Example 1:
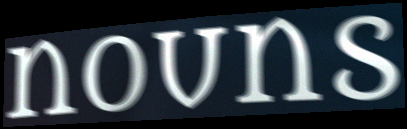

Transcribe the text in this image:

nouns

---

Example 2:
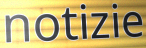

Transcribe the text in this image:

notizie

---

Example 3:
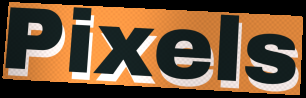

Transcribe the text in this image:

Pixels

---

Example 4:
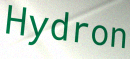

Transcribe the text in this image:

Hydron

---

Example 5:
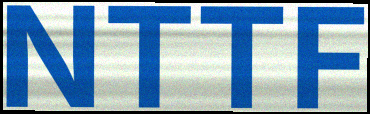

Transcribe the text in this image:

NTTF